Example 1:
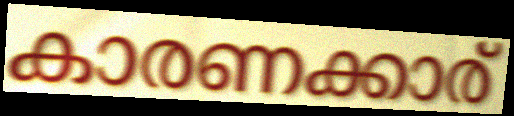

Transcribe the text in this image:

കാരണക്കാര്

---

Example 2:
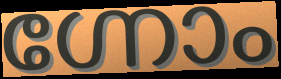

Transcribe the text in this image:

ഗ്നോം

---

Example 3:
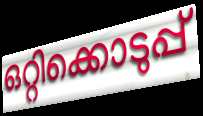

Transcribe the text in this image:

ഒറ്റിക്കൊടുപ്പ്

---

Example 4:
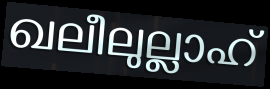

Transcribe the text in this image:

ഖലീലുല്ലാഹ്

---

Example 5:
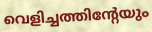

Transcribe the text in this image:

വെളിച്ചത്തിന്റേയും